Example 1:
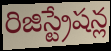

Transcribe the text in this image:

రిజిస్ట్రేషన్ల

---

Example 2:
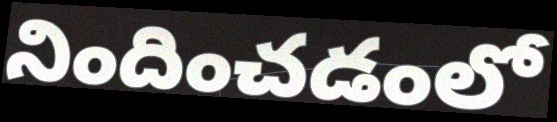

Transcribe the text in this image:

నిందించడంలో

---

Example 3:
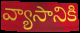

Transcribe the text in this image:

వ్యాసానికి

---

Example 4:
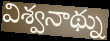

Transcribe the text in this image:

విశ్వనాథ్ను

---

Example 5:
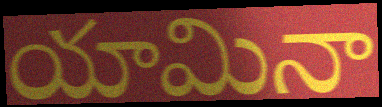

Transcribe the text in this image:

యామినా